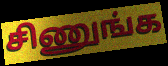
சிணுங்க